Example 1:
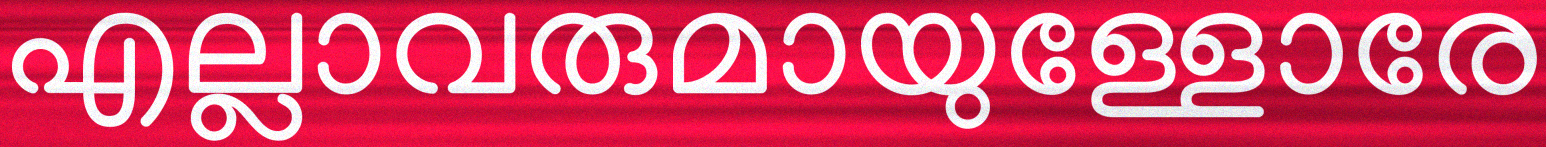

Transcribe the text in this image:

എല്ലാവരുമായുള്ളോരേ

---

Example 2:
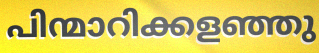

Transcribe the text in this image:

പിന്മാറിക്കളഞ്ഞു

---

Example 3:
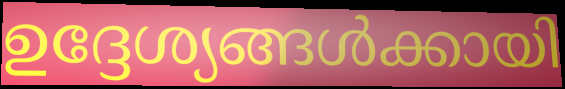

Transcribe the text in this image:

ഉദ്ദേശ്യങ്ങൾക്കായി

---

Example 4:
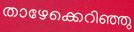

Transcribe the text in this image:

താഴേക്കെറിഞ്ഞു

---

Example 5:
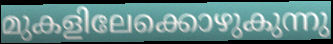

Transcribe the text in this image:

മുകളിലേക്കൊഴുകുന്നു